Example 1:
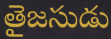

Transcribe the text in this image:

తైజసుడు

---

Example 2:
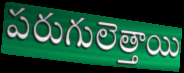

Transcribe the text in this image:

పరుగులెత్తాయి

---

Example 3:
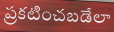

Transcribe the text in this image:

ప్రకటించబడేలా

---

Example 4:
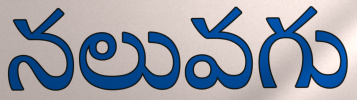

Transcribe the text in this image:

నలువగు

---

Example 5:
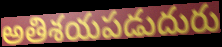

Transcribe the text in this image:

అతిశయపడుదురు